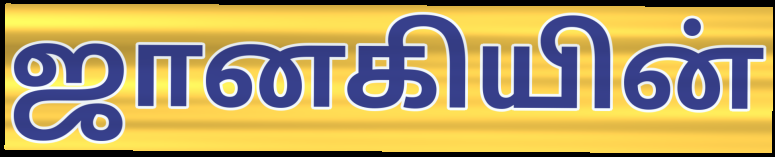
ஜானகியின்